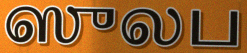
ஸுலப